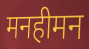
मनहीमन